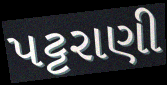
પટ્ટરાણી